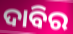
ଦାବିର